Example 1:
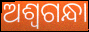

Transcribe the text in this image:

ଅଶ୍ୱଗନ୍ଧା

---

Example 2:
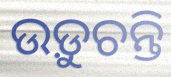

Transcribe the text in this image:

ଉଡ଼ୁଚନ୍ତି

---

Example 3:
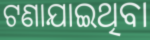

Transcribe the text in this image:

ଟଣାଯାଇଥିବା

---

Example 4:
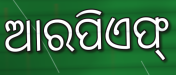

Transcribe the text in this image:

ଆରପିଏଫ୍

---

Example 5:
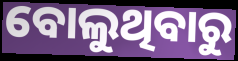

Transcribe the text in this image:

ବୋଲୁଥିବାରୁ